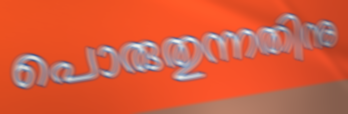
പൊരുതുന്നതിനു